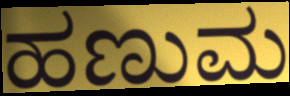
ಹಣುಮ